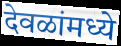
देवळांमध्ये